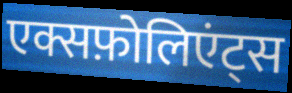
एक्सफ़ोलिएंट्स